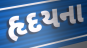
હૃદયના